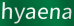
hyaena